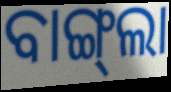
ବାଙ୍ଗ୍‍ଲା